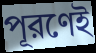
পূরণেই